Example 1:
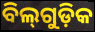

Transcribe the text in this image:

ବିଲ୍‌ଗୁଡ଼ିକ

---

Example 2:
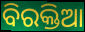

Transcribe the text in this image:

ବିରକ୍ତିଆ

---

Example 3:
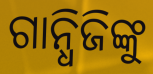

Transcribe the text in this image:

ଗାନ୍ଧିଜିଙ୍କୁ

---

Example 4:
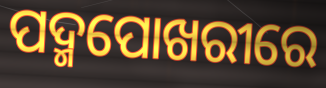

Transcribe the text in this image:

ପଦ୍ମପୋଖରୀରେ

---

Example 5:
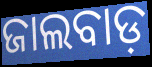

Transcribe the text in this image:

ଜାଲବାଡ଼